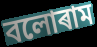
বলোৰাম